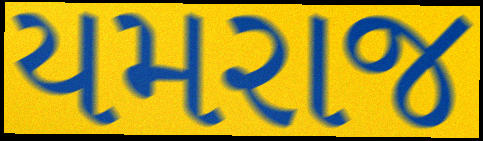
યમરાજ